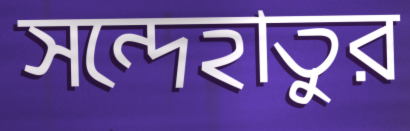
সন্দেহাতুর